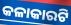
କଳାକାରଟି